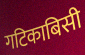
गटिकाबिसी